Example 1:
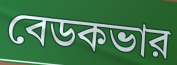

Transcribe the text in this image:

বেডকভার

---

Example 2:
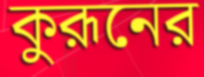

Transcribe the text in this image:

কুরূনের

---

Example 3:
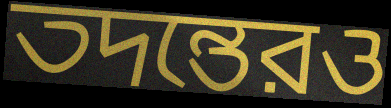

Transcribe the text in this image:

তদন্তেরও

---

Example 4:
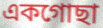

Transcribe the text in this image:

একগোছা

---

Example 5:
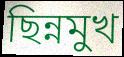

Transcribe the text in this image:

ছিন্নমুখ